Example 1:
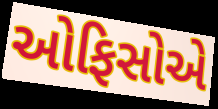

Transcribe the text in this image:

ઓફિસોએ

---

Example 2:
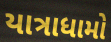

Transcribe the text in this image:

યાત્રાધામો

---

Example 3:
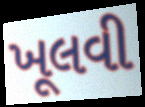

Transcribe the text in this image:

ખૂલવી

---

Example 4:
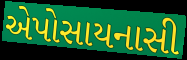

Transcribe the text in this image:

એપોસાયનાસી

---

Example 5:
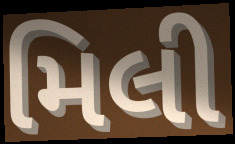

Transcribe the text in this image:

મિલી